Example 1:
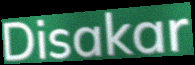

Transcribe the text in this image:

Disakar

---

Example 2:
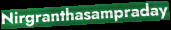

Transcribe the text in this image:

Nirgranthasampraday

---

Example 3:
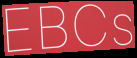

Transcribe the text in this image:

EBCs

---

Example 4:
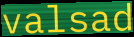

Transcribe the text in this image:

valsad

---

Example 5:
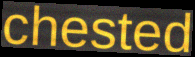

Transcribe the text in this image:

chested